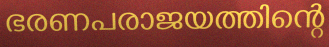
ഭരണപരാജയത്തിന്റെ